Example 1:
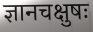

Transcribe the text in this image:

ज्ञानचक्षुषः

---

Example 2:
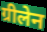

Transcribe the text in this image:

ग्रीलेन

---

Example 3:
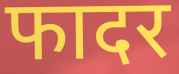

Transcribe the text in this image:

फादर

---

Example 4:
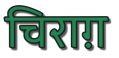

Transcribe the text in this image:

चिराग़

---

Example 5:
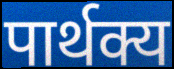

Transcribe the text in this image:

पार्थक्य